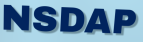
NSDAP